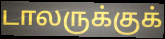
டாலருக்குக்